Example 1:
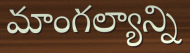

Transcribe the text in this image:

మాంగల్యాన్ని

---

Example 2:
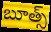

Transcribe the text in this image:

బూత్స్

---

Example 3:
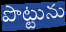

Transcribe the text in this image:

పొట్టును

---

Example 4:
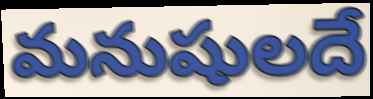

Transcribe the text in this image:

మనుషులదే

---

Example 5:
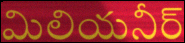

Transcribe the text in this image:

మిలియనీర్